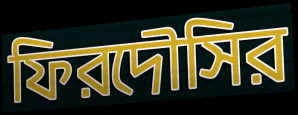
ফিরদৌসির